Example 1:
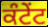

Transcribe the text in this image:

ਕੰਟੇਂਟ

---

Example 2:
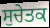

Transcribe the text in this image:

ਸੁਚੇਤਕ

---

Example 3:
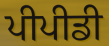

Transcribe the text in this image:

ਪੀਪੀਡੀ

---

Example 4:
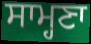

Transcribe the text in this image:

ਸਾਮ੍ਹਣਾ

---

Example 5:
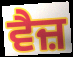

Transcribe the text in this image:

ਵੈਜ਼